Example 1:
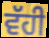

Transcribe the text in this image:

ਵੱਹੀ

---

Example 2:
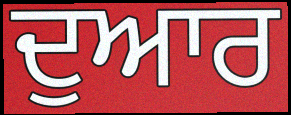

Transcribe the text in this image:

ਦੁਆਰ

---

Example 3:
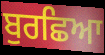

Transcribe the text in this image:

ਬੁਰਛਿਆ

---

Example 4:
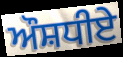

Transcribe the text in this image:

ਔਸ਼ਧੀਏ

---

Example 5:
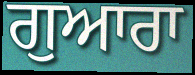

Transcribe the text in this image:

ਗੁਆਰਾ